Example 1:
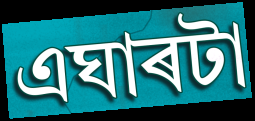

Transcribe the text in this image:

এঘাৰটা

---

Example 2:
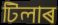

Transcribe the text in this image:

টিলাৰ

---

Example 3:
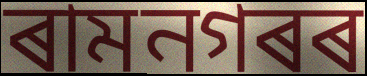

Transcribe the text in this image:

ৰামনগৰৰ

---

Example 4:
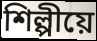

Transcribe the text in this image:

শিল্পীয়ে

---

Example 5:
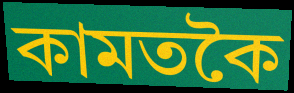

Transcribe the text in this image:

কামতকৈ